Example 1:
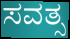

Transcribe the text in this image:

ಸವತ್ಸ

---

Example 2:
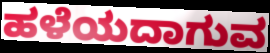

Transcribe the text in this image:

ಹಳೆಯದಾಗುವ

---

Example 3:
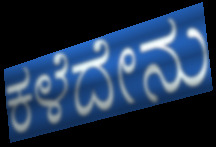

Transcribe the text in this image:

ಕಳೆದೇನು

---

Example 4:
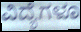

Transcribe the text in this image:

ವಿದ್ಯೆಗಳೂ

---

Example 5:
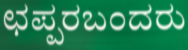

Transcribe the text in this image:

ಛಪ್ಪರಬಂದರು